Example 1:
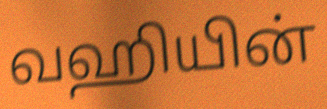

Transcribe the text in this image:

வஹியின்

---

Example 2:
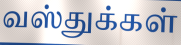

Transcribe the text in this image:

வஸ்துக்கள்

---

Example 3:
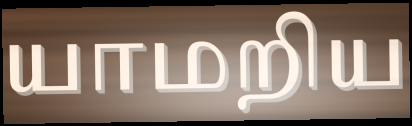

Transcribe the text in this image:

யாமறிய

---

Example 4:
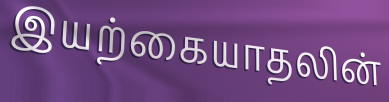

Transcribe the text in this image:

இயற்கையாதலின்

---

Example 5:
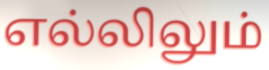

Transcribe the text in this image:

எல்லிலும்